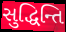
સુદ્ધિન્તિ